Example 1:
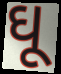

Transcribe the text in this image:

ઘૂ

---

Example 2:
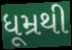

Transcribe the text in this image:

ધૂમ્રથી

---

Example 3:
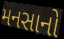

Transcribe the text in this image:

મનસાનો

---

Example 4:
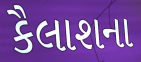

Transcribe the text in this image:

કૈલાશના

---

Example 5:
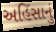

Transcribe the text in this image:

અહિંસાનું